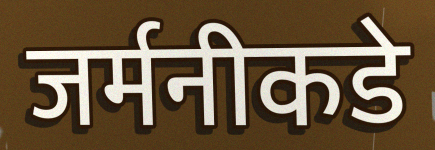
जर्मनीकडे